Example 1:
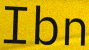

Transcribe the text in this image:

Ibn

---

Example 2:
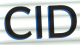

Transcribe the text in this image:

CID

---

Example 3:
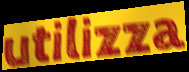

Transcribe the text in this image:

utilizza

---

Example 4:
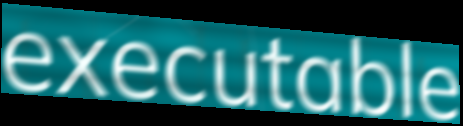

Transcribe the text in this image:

executable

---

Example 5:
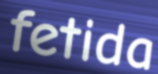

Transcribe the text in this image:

fetida